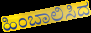
ಹಿಂಬಾಲಿಸಿದ